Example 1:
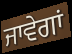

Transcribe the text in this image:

ਜਾਵੇਗਾਂ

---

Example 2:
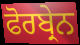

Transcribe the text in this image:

ਫੋਰਬ੍ਰੇਨ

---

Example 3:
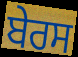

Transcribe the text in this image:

ਬੇਰਸ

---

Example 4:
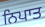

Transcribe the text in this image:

ਨਿਪਾਤ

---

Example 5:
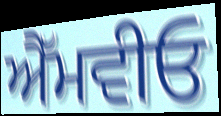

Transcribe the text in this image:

ਐੱਮਵੀਓ